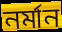
নৰ্মান